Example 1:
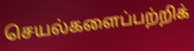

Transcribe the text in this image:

செயல்களைப்பற்றிக்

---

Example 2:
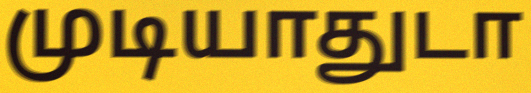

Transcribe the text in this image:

முடியாதுடா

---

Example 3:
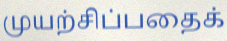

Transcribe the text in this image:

முயற்சிப்பதைக்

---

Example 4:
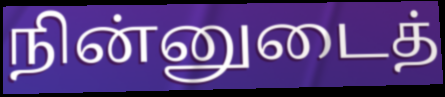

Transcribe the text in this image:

நின்னுடைத்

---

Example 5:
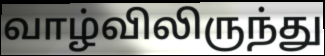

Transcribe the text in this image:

வாழ்விலிருந்து